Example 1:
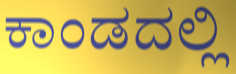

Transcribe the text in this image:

ಕಾಂಡದಲ್ಲಿ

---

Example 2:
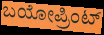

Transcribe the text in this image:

ಬಯೋಪ್ರಿಂಟ್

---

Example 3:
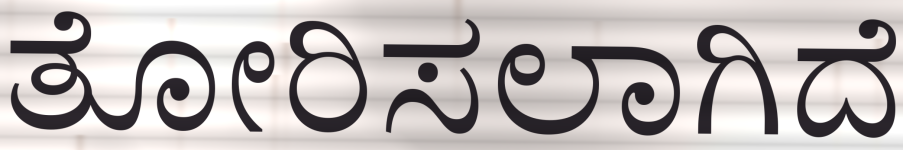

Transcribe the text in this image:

ತೋರಿಸಲಾಗಿದೆ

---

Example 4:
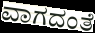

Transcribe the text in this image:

ವಾಗದಂತೆ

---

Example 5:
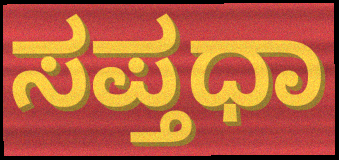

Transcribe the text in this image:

ಸಪ್ತಧಾ